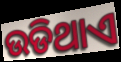
ଉଡିଥାଏ